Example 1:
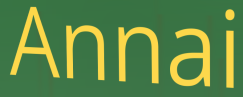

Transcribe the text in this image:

Annai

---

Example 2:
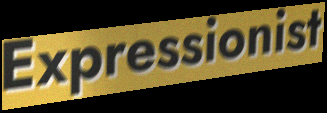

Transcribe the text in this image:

Expressionist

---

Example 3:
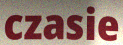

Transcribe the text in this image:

czasie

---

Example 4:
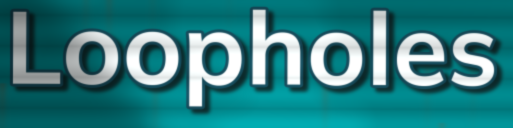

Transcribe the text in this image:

Loopholes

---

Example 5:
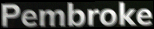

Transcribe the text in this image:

Pembroke